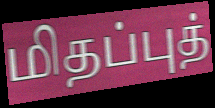
மிதப்புத்